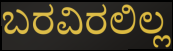
ಬರವಿರಲಿಲ್ಲ